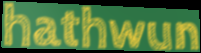
hathwun